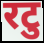
रटु